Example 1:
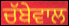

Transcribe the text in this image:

ਚੱਬੇਵਾਲ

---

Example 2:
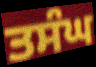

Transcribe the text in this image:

ਤਸੰਘ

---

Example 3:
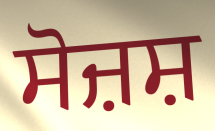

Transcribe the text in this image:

ਸੋਜ਼ਸ਼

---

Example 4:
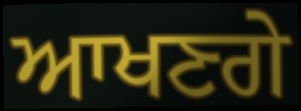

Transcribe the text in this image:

ਆਖਣਗੇ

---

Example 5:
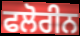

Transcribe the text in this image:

ਫਲੋਰੀਨ